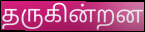
தருகின்றன